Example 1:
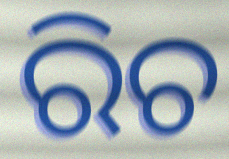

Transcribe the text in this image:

ରିଚ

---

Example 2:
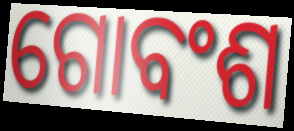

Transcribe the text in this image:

ଗୋବଂଶ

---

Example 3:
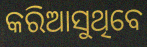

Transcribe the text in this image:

କରିଆସୁଥିବେ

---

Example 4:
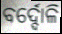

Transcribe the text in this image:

ବର୍ଦ୍ଦୋଳି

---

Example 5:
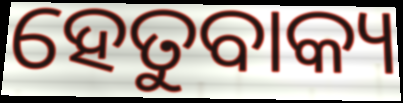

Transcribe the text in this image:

ହେତୁବାକ୍ୟ